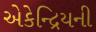
એકેન્દ્રિયની